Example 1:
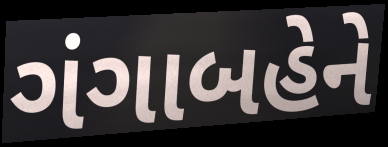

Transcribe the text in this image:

ગંગાબહેને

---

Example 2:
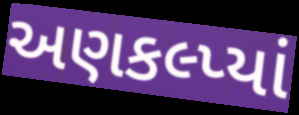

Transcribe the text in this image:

અણકલ્પ્યાં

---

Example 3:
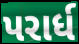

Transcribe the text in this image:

પરાર્ધ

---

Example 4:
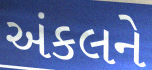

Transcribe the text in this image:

અંકલને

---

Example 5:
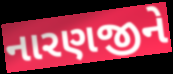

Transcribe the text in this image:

નારણજીને